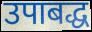
उपाबद्ध